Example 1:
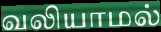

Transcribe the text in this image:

வலியாமல்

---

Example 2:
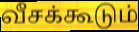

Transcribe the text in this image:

வீசக்கூடும்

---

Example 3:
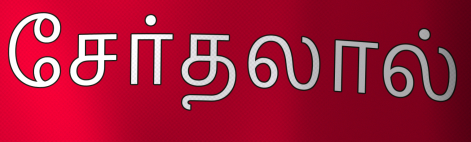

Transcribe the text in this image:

சேர்தலால்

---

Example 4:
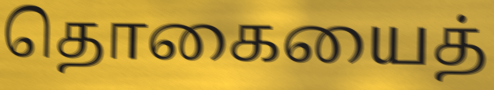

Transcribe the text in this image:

தொகையைத்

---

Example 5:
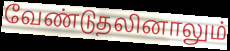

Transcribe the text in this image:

வேண்டுதலினாலும்